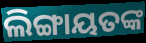
ଲିଙ୍ଗାୟତଙ୍କ